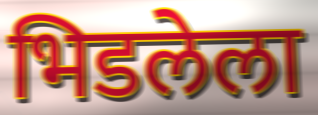
भिडलेला